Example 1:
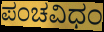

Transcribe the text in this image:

ಪಂಚವಿಧಂ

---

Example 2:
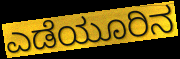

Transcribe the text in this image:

ಎಡೆಯೂರಿನ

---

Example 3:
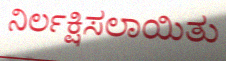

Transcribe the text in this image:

ನಿರ್ಲಕ್ಷಿಸಲಾಯಿತು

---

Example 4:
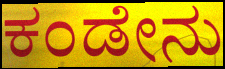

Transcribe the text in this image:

ಕಂಡೇನು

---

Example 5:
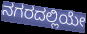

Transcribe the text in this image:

ನಗರದಲ್ಲಿಯೇ